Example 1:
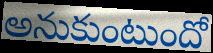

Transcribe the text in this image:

అనుకుంటుందో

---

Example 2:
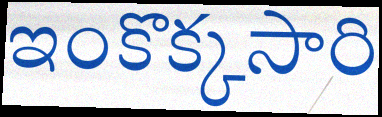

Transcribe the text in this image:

ఇంకొక్కసారి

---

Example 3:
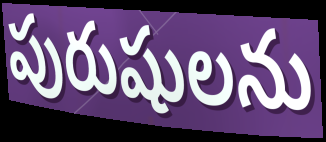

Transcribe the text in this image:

పురుషులను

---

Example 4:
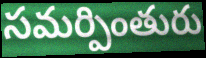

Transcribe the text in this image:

సమర్పింతురు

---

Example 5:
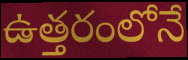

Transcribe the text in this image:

ఉత్తరంలోనే